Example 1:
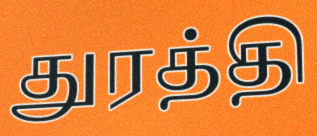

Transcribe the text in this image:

துரத்தி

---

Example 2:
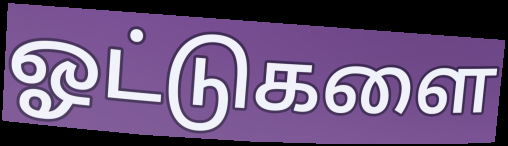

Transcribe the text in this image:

ஓட்டுகளை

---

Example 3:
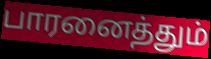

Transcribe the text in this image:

பாரனைத்தும்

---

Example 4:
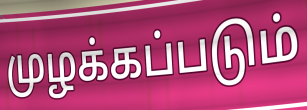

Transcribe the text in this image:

முழக்கப்படும்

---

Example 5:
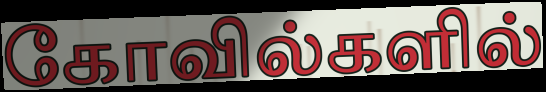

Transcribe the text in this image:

கோவில்களில்